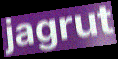
jagrut